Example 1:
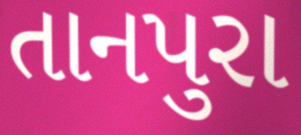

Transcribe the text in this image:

તાનપુરા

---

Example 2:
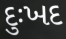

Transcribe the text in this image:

દુઃખદ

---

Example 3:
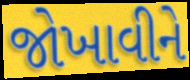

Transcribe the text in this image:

જોખાવીને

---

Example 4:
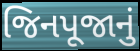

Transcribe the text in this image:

જિનપૂજાનું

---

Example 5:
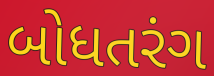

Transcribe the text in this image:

બોધતરંગ